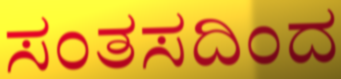
ಸಂತಸದಿಂದ